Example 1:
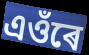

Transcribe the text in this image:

এওঁৰে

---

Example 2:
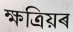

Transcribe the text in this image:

ক্ষত্ৰিয়ৰ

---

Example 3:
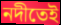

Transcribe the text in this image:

নদীতেই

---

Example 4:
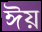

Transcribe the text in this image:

ঈয়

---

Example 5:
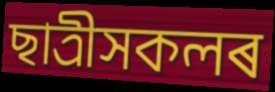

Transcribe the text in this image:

ছাত্ৰীসকলৰ